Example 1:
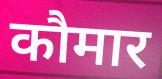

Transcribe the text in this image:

कौमार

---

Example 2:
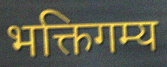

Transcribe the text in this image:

भक्तिगम्य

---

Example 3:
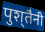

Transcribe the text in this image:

पुश्तैनी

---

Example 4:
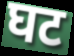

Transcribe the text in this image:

घट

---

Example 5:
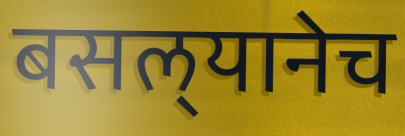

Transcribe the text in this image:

बसल्यानेच